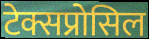
टेक्सप्रोसिल